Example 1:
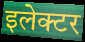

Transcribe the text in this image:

इलेक्टर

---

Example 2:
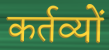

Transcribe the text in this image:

कर्तव्यों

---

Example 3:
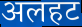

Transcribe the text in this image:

अलहट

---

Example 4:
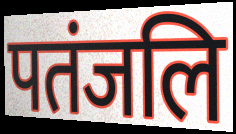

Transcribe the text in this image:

पतंजलि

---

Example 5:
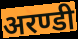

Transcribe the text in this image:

अरण्डी